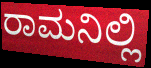
ರಾಮನಿಲ್ಲಿ